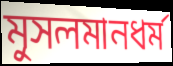
মুসলমানধর্ম